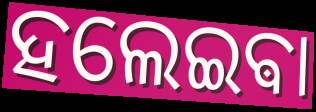
ହଲେଇଵା